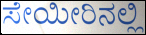
ಸೇಯೀರಿನಲ್ಲಿ